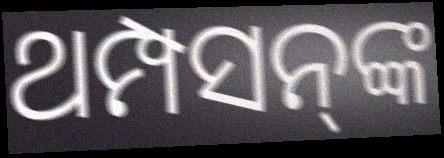
ଥମ୍ପସନ୍‌ଙ୍କ